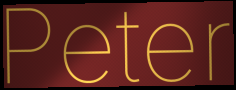
Peter